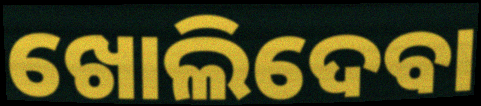
ଖୋଲିଦେବା